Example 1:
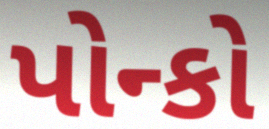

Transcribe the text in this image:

પોન્કો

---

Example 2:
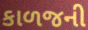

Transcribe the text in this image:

કાળજની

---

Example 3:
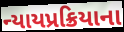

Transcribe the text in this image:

ન્યાયપ્રક્રિયાના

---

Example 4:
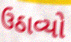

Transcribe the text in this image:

ઉઠાવ્યો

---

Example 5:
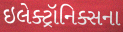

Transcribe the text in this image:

ઇલેક્ટ્રૉનિક્સના